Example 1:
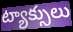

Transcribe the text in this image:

ట్యాక్సులు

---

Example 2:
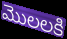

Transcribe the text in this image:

మొలలకి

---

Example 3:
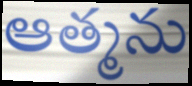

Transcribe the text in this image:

ఆత్మను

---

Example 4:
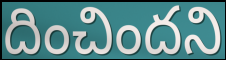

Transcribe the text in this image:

దించిందని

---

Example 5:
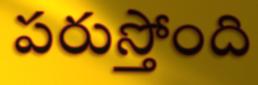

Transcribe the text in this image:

పరుస్తోంది